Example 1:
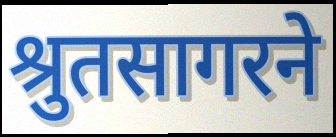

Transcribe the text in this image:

श्रुतसागरने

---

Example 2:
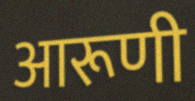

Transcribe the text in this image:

आरूणी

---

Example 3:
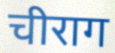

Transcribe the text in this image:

चीराग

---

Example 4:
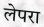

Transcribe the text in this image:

लेपरा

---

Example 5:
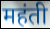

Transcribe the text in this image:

महंती